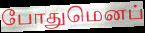
போதுமெனப்